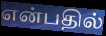
என்பதில்